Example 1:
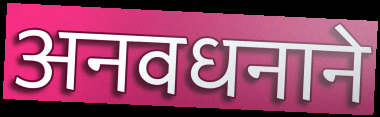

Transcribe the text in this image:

अनवधनाने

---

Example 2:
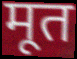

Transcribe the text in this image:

मूत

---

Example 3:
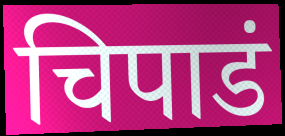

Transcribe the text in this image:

चिपाडं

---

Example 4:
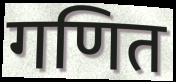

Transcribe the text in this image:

गणित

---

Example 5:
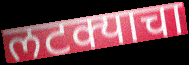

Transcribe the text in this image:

लटक्याचा